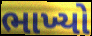
ભાખ્યો